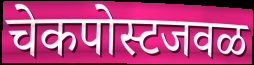
चेकपोस्टजवळ